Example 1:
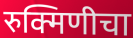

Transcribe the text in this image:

रुक्मिणीचा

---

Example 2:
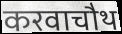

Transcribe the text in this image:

करवाचौथ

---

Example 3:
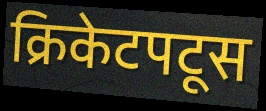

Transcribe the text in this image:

क्रिकेटपटूस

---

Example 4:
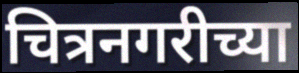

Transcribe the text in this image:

चित्रनगरीच्या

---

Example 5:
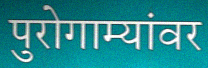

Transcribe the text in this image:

पुरोगाम्यांवर